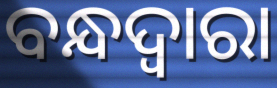
ବନ୍ଧଦ୍ବାରା